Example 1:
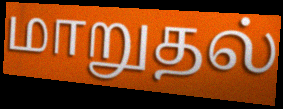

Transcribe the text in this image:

மாறுதல்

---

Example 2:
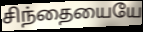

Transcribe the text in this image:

சிந்தையையே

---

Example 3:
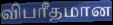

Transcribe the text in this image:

விபரீதமான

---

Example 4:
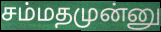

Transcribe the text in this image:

சம்மதமுன்னு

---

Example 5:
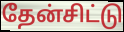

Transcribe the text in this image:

தேன்சிட்டு